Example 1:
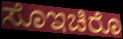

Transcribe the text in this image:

ಸೊಇಚಿರೊ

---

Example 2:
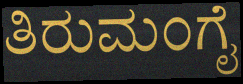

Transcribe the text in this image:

ತಿರುಮಂಗೈ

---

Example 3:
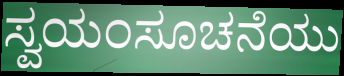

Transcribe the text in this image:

ಸ್ವಯಂಸೂಚನೆಯು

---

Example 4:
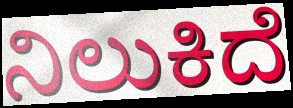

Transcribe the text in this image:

ನಿಲುಕಿದೆ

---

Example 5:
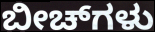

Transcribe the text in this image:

ಬೀಚ್‌ಗಳು